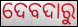
ଦେବଦାରୁ